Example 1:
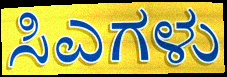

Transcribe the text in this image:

ಸಿಎಗಳು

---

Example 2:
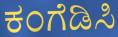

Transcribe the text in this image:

ಕಂಗೆಡಿಸಿ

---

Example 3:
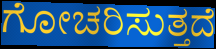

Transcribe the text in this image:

ಗೋಚರಿಸುತ್ತದೆ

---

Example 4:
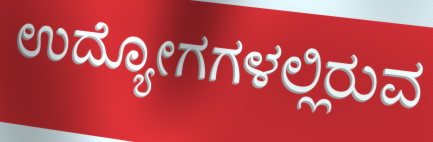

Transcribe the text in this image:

ಉದ್ಯೋಗಗಳಲ್ಲಿರುವ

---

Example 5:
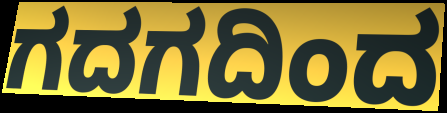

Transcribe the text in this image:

ಗದಗದಿಂದ